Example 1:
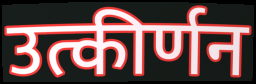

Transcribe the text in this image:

उत्कीर्णन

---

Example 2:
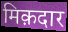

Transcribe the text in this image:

मिक़दार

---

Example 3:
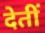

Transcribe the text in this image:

देतीं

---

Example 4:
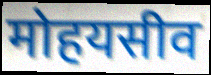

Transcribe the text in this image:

मोहयसीव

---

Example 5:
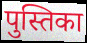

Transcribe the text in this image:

पुस्तिका